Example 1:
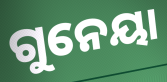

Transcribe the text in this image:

ଗୁନେୟା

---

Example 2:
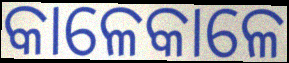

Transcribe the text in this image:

କାଳେକାଳେ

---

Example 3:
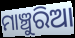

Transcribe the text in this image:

ମାଞ୍ଚୁରିଆ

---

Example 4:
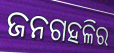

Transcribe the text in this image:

ଜନଗହଳିର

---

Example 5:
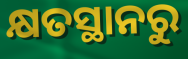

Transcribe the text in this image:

କ୍ଷତସ୍ଥାନରୁ